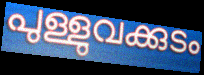
പുള്ളുവക്കുടം